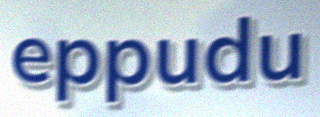
eppudu